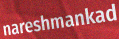
nareshmankad